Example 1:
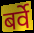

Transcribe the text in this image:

बर्वे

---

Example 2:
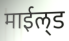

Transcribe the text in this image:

माईल्ड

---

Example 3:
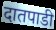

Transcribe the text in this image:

दातपाडी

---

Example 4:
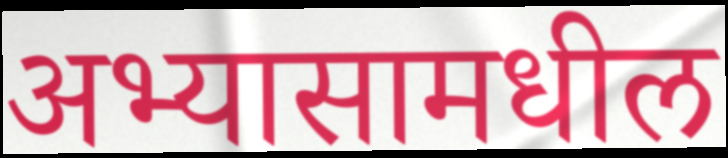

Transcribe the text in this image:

अभ्यासामधील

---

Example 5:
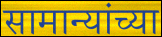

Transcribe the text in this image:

सामान्यांच्या